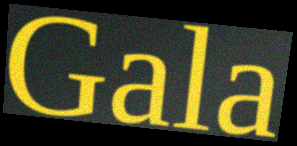
Gala